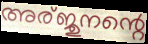
അര്ജുനന്റെ